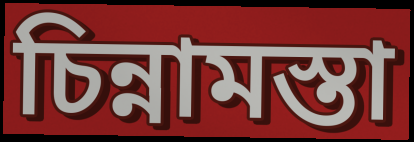
চিন্নামস্তা